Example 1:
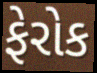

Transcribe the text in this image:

ફેરોક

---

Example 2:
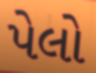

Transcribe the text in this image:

પેલો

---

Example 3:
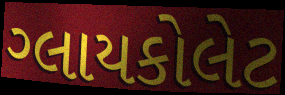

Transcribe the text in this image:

ગ્લાયકોલેટ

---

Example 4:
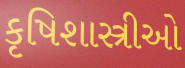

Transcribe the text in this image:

કૃષિશાસ્ત્રીઓ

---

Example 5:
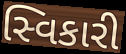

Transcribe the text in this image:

સ્વિકારી